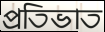
প্রতিভাত